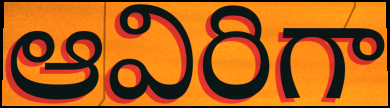
ఆవిరిగా